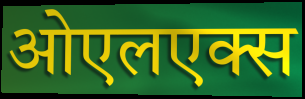
ओएलएक्स